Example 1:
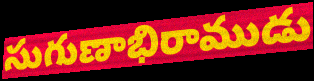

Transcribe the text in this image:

సుగుణాభిరాముడు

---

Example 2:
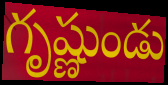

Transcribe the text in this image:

గృష్ణుండు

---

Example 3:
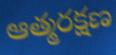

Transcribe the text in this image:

ఆత్మరక్షణ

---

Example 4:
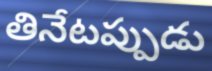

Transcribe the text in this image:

తినేటప్పుడు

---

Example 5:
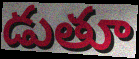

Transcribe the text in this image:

డుతూ